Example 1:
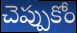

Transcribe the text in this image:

చెప్పుకోం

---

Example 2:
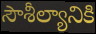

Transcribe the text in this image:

సౌశీల్యానికి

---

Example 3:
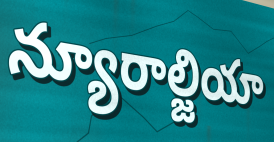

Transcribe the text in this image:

న్యూరాల్జియా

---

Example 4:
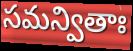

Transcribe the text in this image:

సమన్వితాః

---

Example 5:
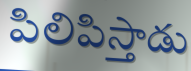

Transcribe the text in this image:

పిలిపిస్తాడు